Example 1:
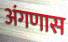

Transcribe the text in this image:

अंगणास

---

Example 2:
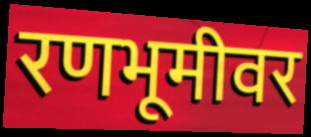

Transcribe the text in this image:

रणभूमीवर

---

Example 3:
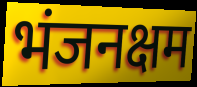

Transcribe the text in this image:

भंजनक्षम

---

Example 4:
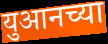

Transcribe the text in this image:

युआनच्या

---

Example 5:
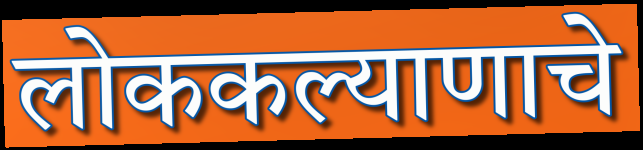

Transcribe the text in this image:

लोककल्याणाचे